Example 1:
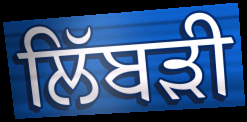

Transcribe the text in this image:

ਲਿੱਬੜੀ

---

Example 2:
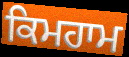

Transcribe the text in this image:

ਕਿਮਹਾਮ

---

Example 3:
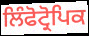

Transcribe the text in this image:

ਲਿੰਫੋਟ੍ਰੋਪਿਕ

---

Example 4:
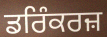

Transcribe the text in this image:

ਡਰਿੰਕਰਜ਼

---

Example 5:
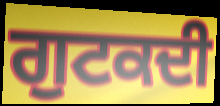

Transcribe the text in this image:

ਗੁਟਕਦੀ